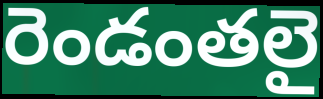
రెండంతలై